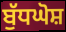
ਬੁੱਧਘੋਸ਼